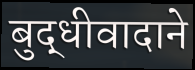
बुद्धीवादाने